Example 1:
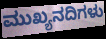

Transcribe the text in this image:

ಮುಖ್ಯನದಿಗಳು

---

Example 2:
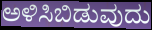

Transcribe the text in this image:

ಅಳಿಸಿಬಿಡುವುದು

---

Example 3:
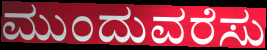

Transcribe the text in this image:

ಮುಂದುವರೆಸು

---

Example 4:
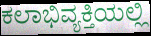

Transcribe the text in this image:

ಕಲಾಭಿವ್ಯಕ್ತಿಯಲ್ಲಿ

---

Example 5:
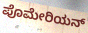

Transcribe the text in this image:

ಪೊಮೇರಿಯನ್